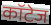
कॉटेज